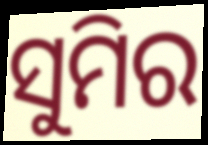
ସୁମିର